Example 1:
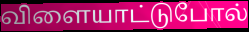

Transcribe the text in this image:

விளையாட்டுபோல்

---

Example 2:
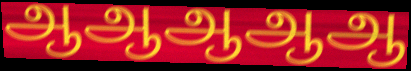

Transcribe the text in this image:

ஆஆஆஆஆ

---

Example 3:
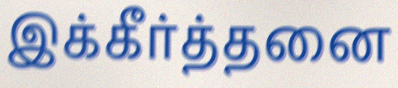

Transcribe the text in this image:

இக்கீர்த்தனை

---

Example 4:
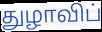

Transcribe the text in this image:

துழாவிப்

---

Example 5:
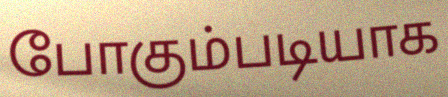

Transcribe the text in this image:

போகும்படியாக